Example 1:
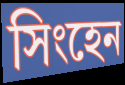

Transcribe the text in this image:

সিংহেন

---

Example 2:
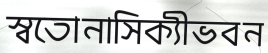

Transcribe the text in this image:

স্বতোনাসিক্যীভবন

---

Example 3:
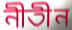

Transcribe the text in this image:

নীতীন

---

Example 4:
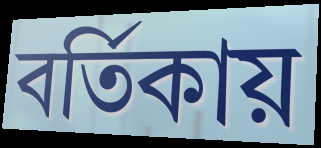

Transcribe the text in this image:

বর্তিকায়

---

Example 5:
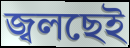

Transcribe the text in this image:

জ্বলছেই